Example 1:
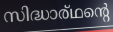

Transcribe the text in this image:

സിദ്ധാര്ഥന്റെ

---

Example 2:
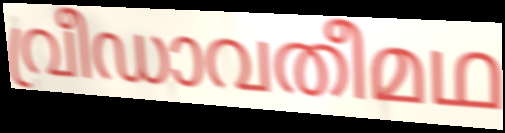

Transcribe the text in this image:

വ്രീഡാവതീമഥ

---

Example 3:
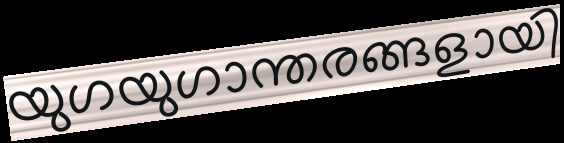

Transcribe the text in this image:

യുഗയുഗാന്തരങ്ങളായി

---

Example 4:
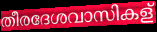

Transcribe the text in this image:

തീരദേശവാസികള്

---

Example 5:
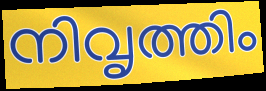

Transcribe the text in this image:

നിവൃത്തിം